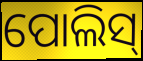
ପୋଲିସ୍